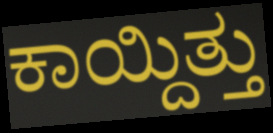
ಕಾಯ್ದಿತ್ತು